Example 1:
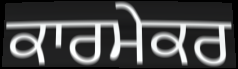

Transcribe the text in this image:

ਕਾਰਮੇਕਰ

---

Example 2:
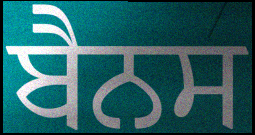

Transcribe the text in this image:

ਬੈਨਸ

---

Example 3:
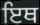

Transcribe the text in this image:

ਇਥ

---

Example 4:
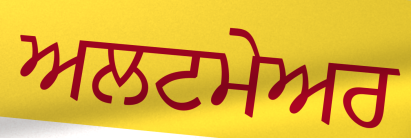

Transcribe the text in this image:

ਅਲਟਮੇਅਰ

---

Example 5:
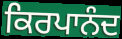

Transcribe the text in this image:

ਕਿਰਪਾਨੰਦ